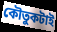
কৌতুকটাই